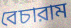
বেচারাম